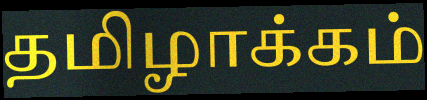
தமிழாக்கம்